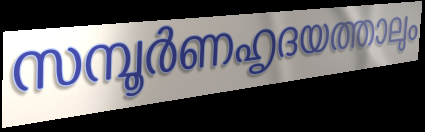
സമ്പൂർണഹൃദയത്താലും